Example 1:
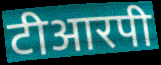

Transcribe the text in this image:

टीआरपी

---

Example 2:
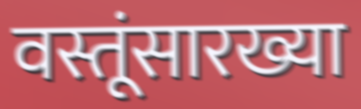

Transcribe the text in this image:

वस्तूंसारख्या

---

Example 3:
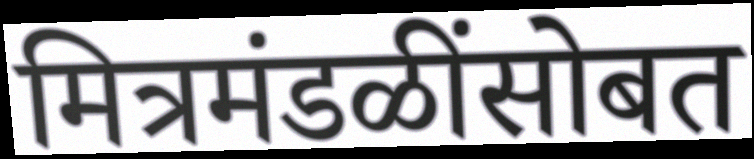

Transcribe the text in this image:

मित्रमंडळींसोबत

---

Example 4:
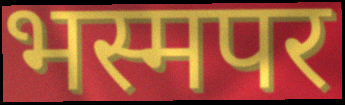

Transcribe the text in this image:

भस्मपर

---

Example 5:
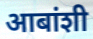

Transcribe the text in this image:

आबांशी